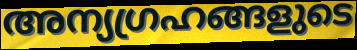
അന്യഗ്രഹങ്ങളുടെ